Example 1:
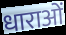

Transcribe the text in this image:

धाराओं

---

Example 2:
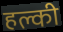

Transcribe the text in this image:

हल्की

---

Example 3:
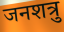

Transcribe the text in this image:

जनशत्रु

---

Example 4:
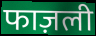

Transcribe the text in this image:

फाज़ली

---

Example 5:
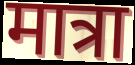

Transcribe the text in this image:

मात्रा